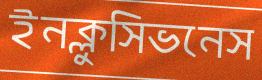
ইনক্লুসিভনেস